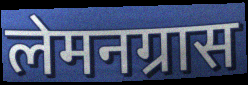
लेमनग्रास